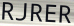
RJRER